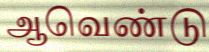
ஆவெண்டு